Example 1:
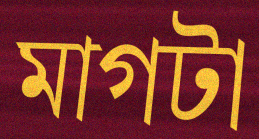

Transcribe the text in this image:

মাগটা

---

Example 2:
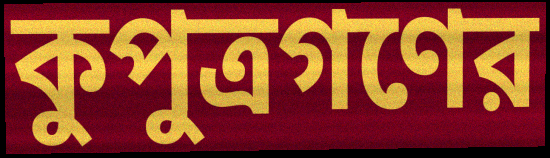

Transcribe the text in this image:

কুপুত্রগণের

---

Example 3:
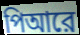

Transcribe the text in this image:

পিআরে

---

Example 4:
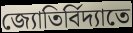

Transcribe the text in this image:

জ্যোতির্বিদ্যাতে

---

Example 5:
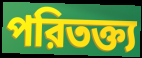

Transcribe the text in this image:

পরিতক্ত্য